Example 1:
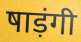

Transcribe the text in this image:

षाड़ंगी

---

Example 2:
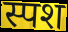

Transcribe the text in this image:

स्पश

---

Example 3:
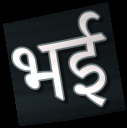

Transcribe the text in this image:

भई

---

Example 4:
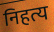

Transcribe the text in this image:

निहत्य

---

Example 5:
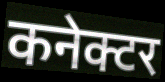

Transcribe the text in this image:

कनेक्टर